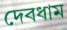
দেবধাম